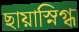
ছায়াস্নিগ্ধ